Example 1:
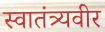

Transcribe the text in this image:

स्वातंत्र्यवीर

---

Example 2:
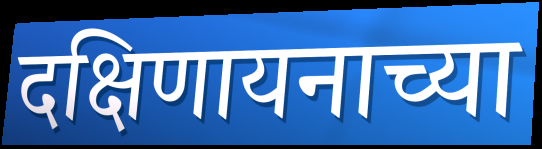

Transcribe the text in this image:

दक्षिणायनाच्या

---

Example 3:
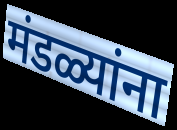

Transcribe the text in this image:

मंडळ्यांना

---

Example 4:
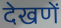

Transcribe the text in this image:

देखणें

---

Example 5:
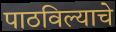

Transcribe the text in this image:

पाठविल्याचे